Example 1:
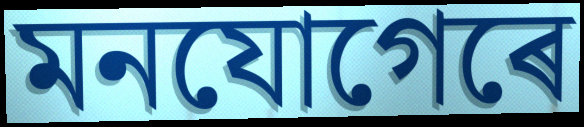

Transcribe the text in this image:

মনযোগেৰে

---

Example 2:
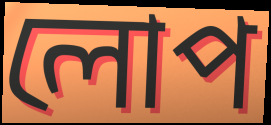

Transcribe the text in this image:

লোপ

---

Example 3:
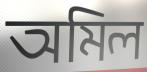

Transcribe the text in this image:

অমিল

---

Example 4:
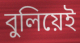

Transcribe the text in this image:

বুলিয়েই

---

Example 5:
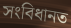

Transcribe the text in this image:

সংবিধানত